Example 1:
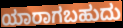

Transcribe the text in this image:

ಯಾರಾಗಬಹುದು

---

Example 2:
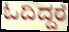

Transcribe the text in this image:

ಓದಿದ್ದರೆ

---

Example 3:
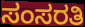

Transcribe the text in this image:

ಸಂಸರತಿ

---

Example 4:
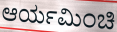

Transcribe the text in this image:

ಆರ್ಯಮಿಂಚಿ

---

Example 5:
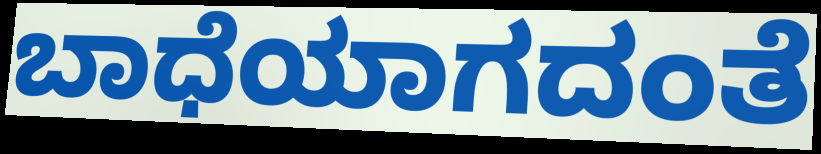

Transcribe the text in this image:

ಬಾಧೆಯಾಗದಂತೆ